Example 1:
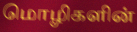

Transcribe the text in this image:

மொழிகளின்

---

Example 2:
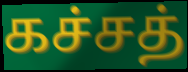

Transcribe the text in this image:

கச்சத்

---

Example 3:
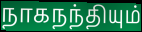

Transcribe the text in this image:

நாகநந்தியும்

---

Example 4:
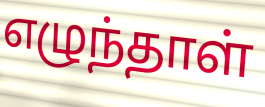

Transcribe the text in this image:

எழுந்தாள்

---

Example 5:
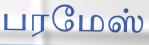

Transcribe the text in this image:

பரமேஸ்